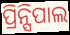
ପ୍ରିନ୍ସିପାଲ